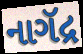
નાગૅદ્ર